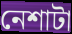
নেশাটা